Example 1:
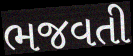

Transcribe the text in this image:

ભજવતી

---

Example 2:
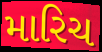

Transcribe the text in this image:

મારિચ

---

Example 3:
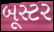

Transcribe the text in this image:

બૂસ્ટર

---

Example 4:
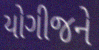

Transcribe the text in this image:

યોગીજને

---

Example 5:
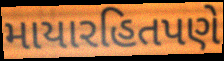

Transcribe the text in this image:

માયારહિતપણે